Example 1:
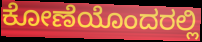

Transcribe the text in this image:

ಕೋಣೆಯೊಂದರಲ್ಲಿ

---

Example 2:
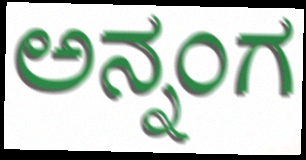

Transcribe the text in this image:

ಅನ್ನಂಗ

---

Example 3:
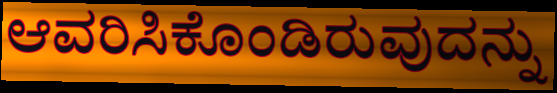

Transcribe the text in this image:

ಆವರಿಸಿಕೊಂಡಿರುವುದನ್ನು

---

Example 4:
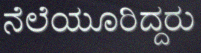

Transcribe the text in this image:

ನೆಲೆಯೂರಿದ್ದರು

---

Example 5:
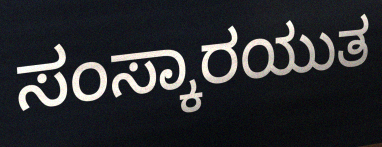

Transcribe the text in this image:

ಸಂಸ್ಕಾರಯುತ